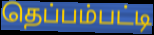
தெப்பம்பட்டி